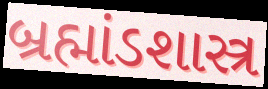
બ્રહ્માંડશાસ્ત્ર